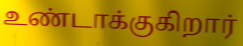
உண்டாக்குகிறார்